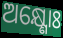
ଅକ୍ଷ୍ଣୋଃ